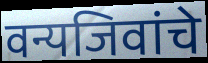
वन्यजिवांचे